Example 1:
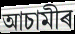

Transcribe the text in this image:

আচামীৰ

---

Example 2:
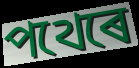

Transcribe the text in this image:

পথেৰে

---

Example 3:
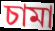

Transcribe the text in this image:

চামা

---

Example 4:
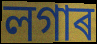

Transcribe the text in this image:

লগাৰ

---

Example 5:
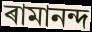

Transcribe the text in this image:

ৰামানন্দ